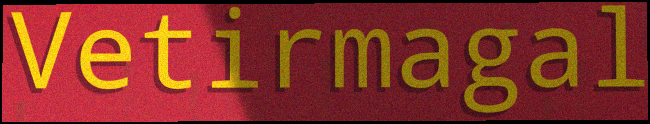
Vetirmagal